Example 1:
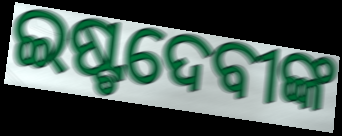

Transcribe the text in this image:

ଇଷ୍ଟଦେବୀଙ୍କ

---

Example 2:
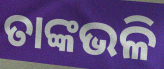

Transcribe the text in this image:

ତାଙ୍କଭଳି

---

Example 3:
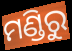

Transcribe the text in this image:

ମଣ୍ଡିରୁ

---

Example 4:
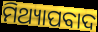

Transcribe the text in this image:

ମିଥ୍ୟାପବାଦ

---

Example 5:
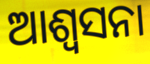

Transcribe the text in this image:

ଆଶ୍ୱସନା